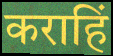
कराहिं